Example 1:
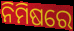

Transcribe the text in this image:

ନିମିଷରେ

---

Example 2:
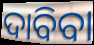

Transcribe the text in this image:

ଦାବିବା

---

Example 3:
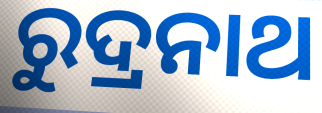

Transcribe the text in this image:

ରୁଦ୍ରନାଥ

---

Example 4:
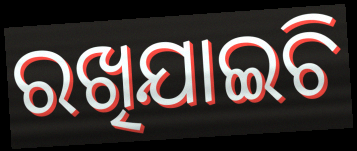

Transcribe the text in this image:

ରଖିଯାଇଚି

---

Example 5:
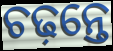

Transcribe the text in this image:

ଚଢ଼ନ୍ତେ